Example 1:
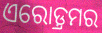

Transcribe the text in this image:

ଏରୋଡ଼୍ରମର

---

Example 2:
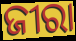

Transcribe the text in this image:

ଜୀରା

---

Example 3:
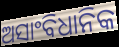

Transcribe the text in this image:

ଅସାଂବିଧାନିକ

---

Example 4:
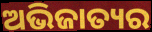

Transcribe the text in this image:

ଅଭିଜାତ୍ୟର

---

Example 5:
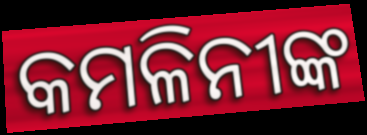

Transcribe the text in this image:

କମଳିନୀଙ୍କ